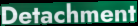
Detachment